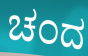
ಚಂದ